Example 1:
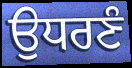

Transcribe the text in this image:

ਉਧਰਣੰ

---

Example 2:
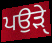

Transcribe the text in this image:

ਪਉੜੑੇ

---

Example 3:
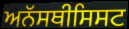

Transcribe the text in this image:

ਅਨੱਸਥੀਸਿਸਟ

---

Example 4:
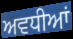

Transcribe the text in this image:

ਅਵਧੀਆਂ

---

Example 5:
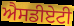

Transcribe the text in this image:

ਐਸਡੀਏਟੀ